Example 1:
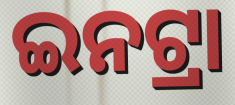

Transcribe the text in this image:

ଇନଟ୍ରା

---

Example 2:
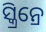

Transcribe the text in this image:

ସ୍କ୍ରିନ୍ରେ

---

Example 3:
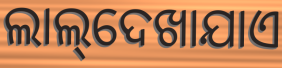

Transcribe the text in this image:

ଲାଲ୍‌ଦେଖାଯାଏ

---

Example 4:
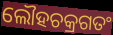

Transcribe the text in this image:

ଲୌହଚକ୍ରଗତଂ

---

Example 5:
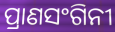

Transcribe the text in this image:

ପ୍ରାଣସଂଗିନୀ